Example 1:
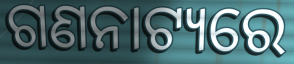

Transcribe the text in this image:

ଗଣନାଟ୍ୟରେ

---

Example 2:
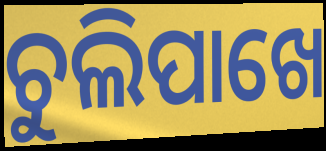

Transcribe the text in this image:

ଚୁଲିପାଖେ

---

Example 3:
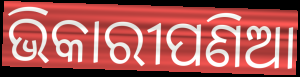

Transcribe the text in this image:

ଭିକାରୀପଣିଆ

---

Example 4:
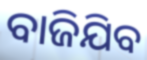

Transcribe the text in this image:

ବାଜିଯିବ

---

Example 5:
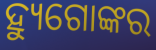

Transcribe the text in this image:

ହ୍ୟୁଗୋଙ୍କର